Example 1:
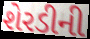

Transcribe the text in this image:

શેરડીની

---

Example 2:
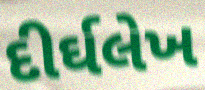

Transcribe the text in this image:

દીર્ઘલેખ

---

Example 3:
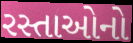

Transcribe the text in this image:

રસ્તાઓનો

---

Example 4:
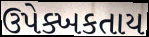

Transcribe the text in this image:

ઉપેક્ખકતાય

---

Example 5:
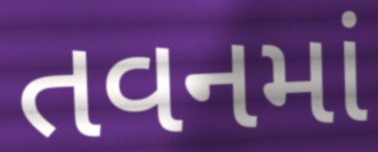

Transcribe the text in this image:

તવનમાં